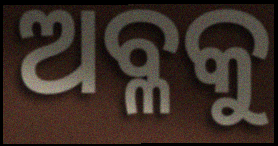
ଅବ୍ଳକୁ